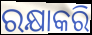
ରକ୍ଷାକରି